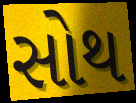
સોથ